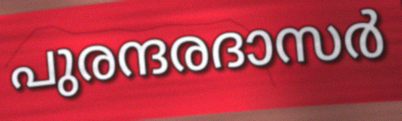
പുരന്ദരദാസർ